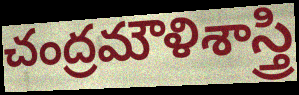
చంద్రమౌళిశాస్త్రి